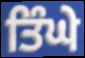
ਤਿੰਘੇ